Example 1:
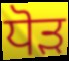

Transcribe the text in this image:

ਧੋੜ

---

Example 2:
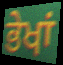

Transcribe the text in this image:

ਭੇਖਾਂ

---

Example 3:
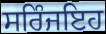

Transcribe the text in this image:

ਸਰਿੰਜਇਹ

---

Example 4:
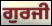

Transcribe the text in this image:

ਗੁਰਜੀ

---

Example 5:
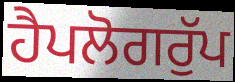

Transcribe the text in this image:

ਹੈਪਲੋਗਰੁੱਪ